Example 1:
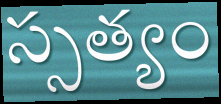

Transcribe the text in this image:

స్సత్యం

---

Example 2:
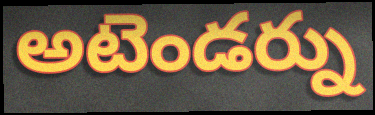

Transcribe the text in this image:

అటెండర్ను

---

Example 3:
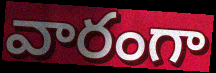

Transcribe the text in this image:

వారంగా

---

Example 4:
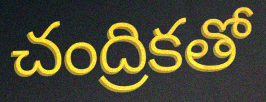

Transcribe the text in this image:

చంద్రికతో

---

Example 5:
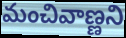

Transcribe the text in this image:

మంచివాణ్ణని